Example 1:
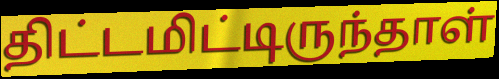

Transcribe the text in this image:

திட்டமிட்டிருந்தாள்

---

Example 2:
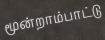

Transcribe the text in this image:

மூன்றாம்பாட்டு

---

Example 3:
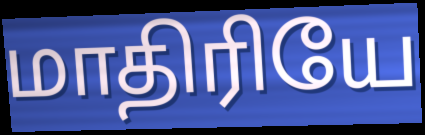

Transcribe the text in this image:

மாதிரியே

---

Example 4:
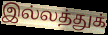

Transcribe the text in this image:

இல்லத்துக்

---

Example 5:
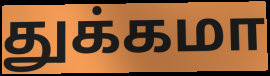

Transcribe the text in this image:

துக்கமா